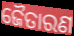
ଜୈତାରଣ